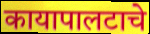
कायापालटाचे